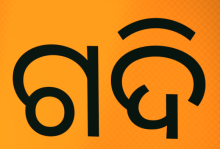
ଗଦି